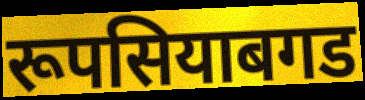
रूपसियाबगड